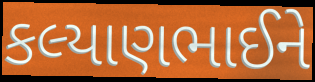
કલ્યાણભાઈને